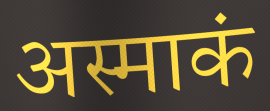
अस्माकं